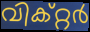
വിക്റ്റർ